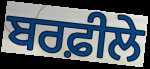
ਬਰਫ਼ੀਲੇ